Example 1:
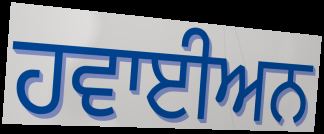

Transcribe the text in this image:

ਹਵਾਈਅਨ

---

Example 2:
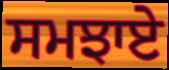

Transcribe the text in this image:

ਸਮਝਾਏ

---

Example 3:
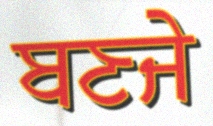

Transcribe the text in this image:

ਬਣਜੇ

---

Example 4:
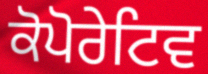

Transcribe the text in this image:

ਕੋਪੋਰੇਟਿਵ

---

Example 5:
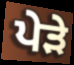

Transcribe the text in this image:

ਪੇੜੇ